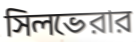
সিলভেরার